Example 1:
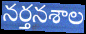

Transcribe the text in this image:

నర్తనశాల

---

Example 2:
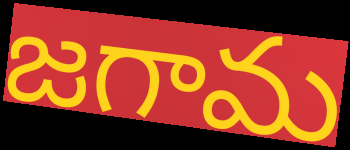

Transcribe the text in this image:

జగామ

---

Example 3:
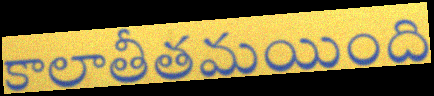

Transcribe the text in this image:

కాలాతీతమయింది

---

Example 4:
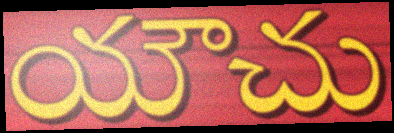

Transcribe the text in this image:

యౌచు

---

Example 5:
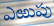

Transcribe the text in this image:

ఎఱుపు